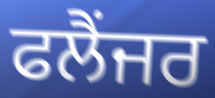
ਫਲੈਂਜਰ